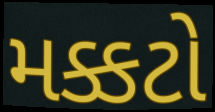
મક્કટો